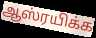
ஆஸ்ரயிக்க